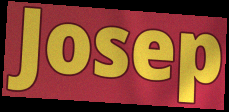
Josep